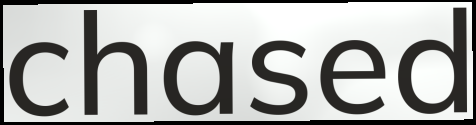
chased